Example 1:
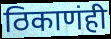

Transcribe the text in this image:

ठिकाणंही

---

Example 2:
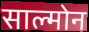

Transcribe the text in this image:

साल्मोन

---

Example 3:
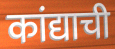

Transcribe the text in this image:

कांद्याची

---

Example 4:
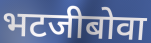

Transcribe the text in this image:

भटजीबोवा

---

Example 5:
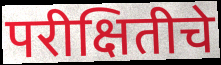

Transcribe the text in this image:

परीक्षितीचे